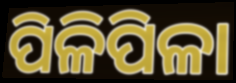
ପିଳିପିଳା